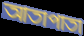
আতাপাতা